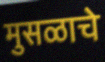
मुसळाचे